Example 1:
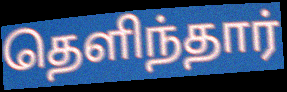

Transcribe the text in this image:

தெளிந்தார்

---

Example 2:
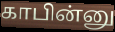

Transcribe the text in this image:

காபின்னு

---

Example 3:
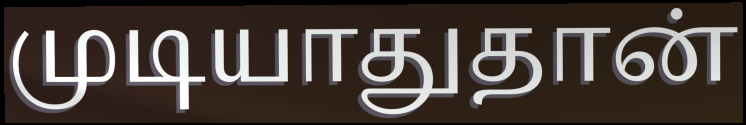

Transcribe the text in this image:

முடியாதுதான்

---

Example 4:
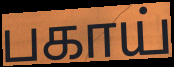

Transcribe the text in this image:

பகாய்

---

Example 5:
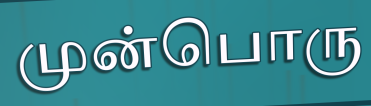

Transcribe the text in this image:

முன்பொரு